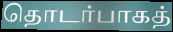
தொடர்பாகத்